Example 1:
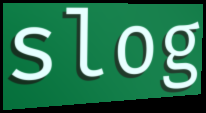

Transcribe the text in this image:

slog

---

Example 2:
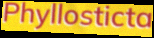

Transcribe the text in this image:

Phyllosticta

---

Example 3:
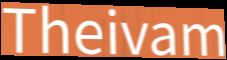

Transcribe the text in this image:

Theivam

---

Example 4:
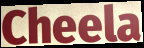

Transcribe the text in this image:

Cheela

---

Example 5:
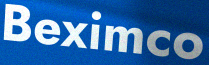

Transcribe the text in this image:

Beximco